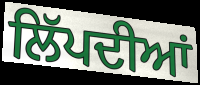
ਲਿੱਪਦੀਆਂ